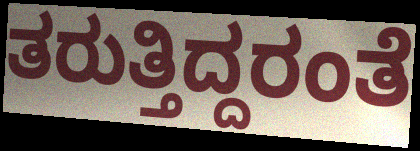
ತರುತ್ತಿದ್ದರಂತೆ